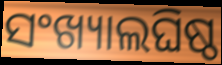
ସଂଖ୍ୟାଲଘିଷ୍ଠ